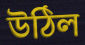
উঠিল